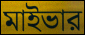
মাইভার